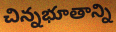
చిన్నభూతాన్ని